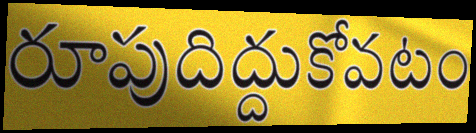
రూపుదిద్దుకోవటం